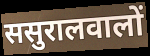
ससुरालवालों